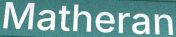
Matheran